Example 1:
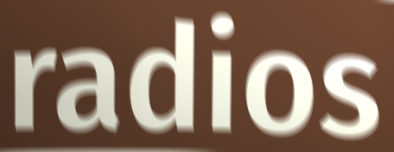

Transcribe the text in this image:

radios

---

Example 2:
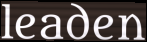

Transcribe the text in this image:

leaden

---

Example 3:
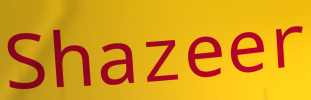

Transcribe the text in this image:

Shazeer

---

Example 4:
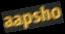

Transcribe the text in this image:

aapsho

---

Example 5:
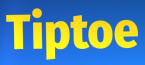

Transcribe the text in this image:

Tiptoe